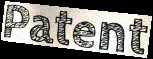
Patent